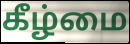
கீழ்மை